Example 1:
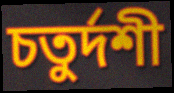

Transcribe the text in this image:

চতুৰ্দশী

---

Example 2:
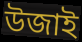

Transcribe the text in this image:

উজাই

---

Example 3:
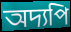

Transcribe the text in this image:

অদ্যপি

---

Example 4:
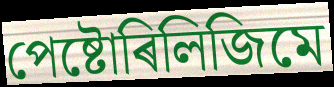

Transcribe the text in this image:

পেষ্টোৰিলিজিমে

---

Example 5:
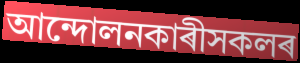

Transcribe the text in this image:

আন্দোলনকাৰীসকলৰ